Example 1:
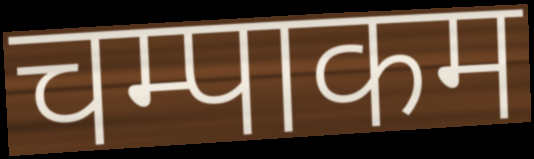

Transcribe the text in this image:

चम्पाकम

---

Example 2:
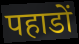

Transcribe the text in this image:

पहाडों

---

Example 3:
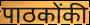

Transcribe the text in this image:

पाठकोंकी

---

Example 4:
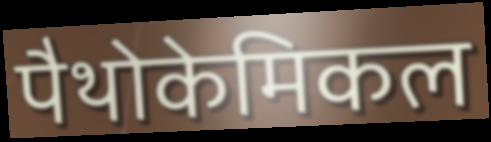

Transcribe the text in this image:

पैथोकेमिकल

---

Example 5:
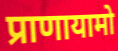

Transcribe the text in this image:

प्राणायामो